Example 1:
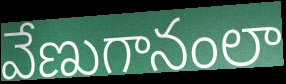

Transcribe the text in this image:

వేణుగానంలా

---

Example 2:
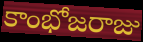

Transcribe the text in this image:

కాంభోజరాజు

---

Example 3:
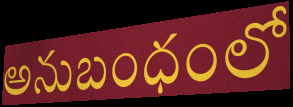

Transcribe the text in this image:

అనుబంధంలో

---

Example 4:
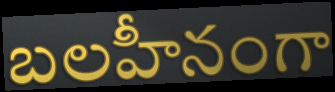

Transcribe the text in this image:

బలహీనంగా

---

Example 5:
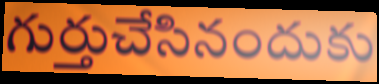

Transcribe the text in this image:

గుర్తుచేసినందుకు